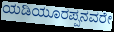
ಯಡಿಯೂರಪ್ಪನವರೇ